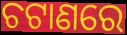
ଚଟାଣରେ